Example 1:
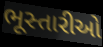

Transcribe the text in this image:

ભૂસ્તારીઓ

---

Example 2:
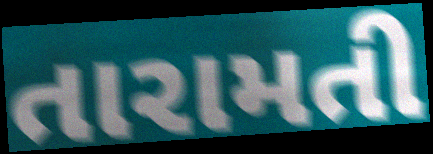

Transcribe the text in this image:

તારામતી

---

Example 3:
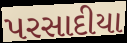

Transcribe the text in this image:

પરસાદીયા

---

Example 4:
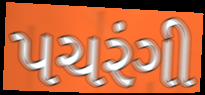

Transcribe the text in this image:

પચરંગી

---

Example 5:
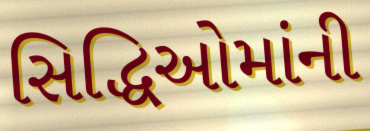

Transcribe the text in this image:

સિદ્ધિઓમાંની